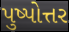
પુષ્પોત્તર